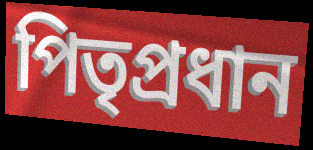
পিতৃপ্রধান